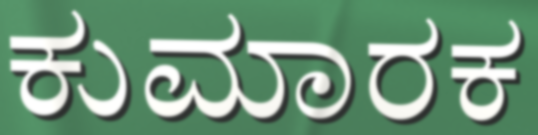
ಕುಮಾರಕ